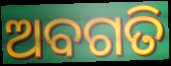
ଅବଗତି